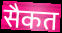
सैकत